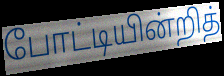
போட்டியின்றித்